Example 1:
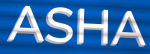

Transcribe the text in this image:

ASHA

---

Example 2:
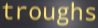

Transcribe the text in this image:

troughs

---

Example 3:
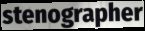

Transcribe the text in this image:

stenographer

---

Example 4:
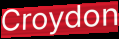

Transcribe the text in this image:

Croydon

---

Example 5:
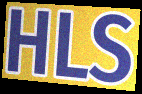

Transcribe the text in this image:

HLS